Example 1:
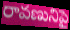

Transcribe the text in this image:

రావణునిపై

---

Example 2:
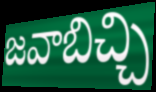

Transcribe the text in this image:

జవాబిచ్చి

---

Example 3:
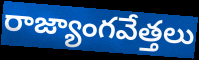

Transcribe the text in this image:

రాజ్యాంగవేత్తలు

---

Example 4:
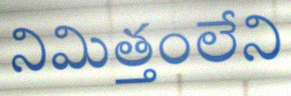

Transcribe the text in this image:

నిమిత్తంలేని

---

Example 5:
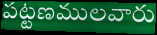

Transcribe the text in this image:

పట్టణములవారు